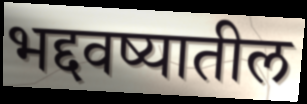
भद्दवष्यातील